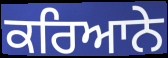
ਕਰਿਆਨੇ